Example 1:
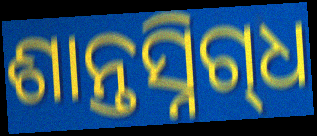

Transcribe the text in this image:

ଶାନ୍ତସ୍ନିଗ୍‌ଧ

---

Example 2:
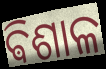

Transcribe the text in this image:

ଵିଶାଳ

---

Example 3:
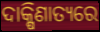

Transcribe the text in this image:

ଦାକ୍ଷିଣାତ୍ୟରେ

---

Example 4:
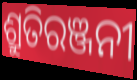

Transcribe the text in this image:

ଶ୍ରୁତିରଞ୍ଜନୀ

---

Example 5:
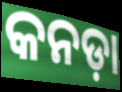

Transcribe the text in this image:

କନଡ଼ା